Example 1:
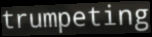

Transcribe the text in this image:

trumpeting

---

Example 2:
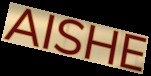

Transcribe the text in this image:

AISHE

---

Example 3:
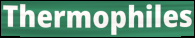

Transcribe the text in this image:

Thermophiles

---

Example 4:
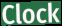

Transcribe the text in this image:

Clock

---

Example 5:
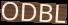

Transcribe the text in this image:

ODBL